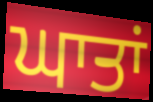
ਘਾਤਾਂ